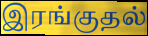
இரங்குதல்